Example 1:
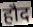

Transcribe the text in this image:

हौद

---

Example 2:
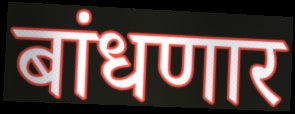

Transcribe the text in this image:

बांधणार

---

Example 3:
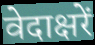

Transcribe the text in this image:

वेदाक्षरें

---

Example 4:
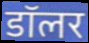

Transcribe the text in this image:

डॉलर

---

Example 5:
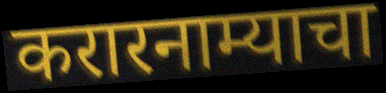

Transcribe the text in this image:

करारनाम्याचा